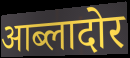
आब्लादोर